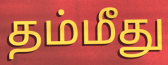
தம்மீது